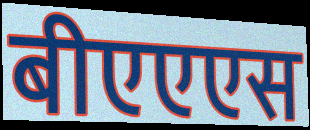
बीएएएस